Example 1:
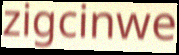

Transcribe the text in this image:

zigcinwe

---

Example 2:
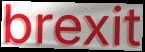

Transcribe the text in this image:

brexit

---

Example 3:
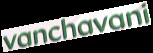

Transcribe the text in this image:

vanchavani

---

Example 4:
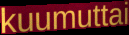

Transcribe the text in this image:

kuumuttai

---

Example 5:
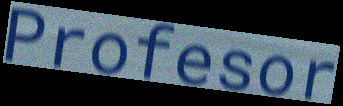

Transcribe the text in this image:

Profesor